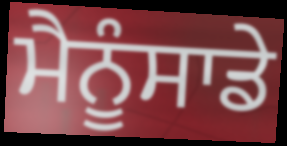
ਮੈਨੂੰਸਾਡੇ